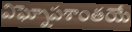
విఘ్నోపశాంతయే